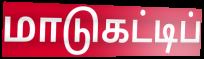
மாடுகட்டிப்